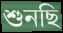
শুনছি